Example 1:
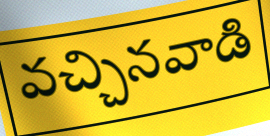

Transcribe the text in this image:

వచ్చినవాడి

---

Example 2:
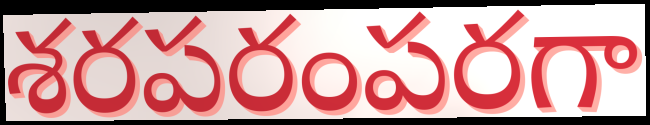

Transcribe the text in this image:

శరపరంపరగా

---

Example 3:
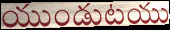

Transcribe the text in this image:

యుండుటయు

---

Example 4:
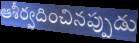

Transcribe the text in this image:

ఆశీర్వదించినప్పుడు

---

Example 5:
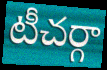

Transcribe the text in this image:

టీచర్గా